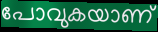
പോവുകയാണ്